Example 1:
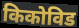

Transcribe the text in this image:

किकोविड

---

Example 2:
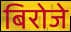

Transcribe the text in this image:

बिरोजे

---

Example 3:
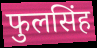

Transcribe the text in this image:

फुलसिंह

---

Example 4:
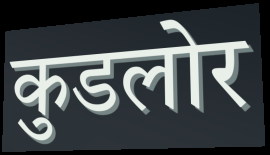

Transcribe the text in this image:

कुडलोर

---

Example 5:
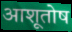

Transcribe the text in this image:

आशूतोष